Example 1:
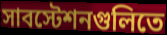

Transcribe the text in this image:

সাবস্টেশনগুলিতে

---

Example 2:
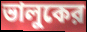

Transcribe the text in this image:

ভালুকের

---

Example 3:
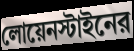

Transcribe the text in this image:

লোয়েনস্টাইনের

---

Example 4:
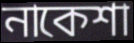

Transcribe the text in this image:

নাকেশা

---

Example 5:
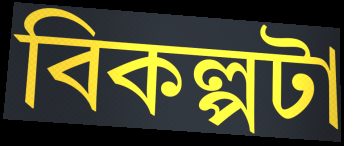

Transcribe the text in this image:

বিকল্পটা